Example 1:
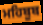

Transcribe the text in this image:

ਮਹਿਬੂਬ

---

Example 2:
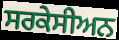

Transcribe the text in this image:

ਸਰਕੇਸੀਅਨ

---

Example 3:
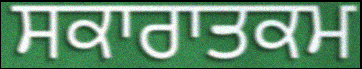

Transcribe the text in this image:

ਸਕਾਰਾਤਕਮ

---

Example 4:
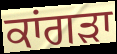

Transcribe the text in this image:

ਕਾਂਗਡ਼ਾ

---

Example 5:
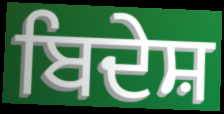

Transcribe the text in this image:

ਬਿਦੇਸ਼